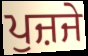
ਪੁਜ਼ਜੇ